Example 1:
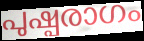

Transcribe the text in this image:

പുഷ്പരാഗം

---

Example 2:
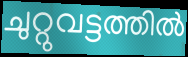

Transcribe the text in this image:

ചുറ്റുവട്ടത്തിൽ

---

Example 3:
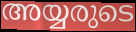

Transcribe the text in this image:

അയ്യരുടെ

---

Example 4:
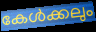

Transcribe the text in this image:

കേൾക്കലും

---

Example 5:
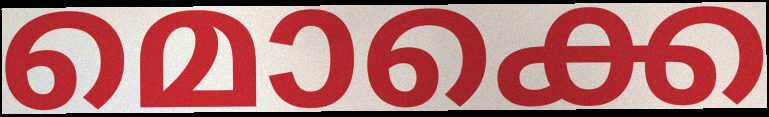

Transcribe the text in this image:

മൊക്കെ